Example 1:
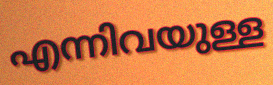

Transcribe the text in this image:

എന്നിവയുള്ള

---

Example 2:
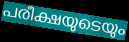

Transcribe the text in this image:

പരീക്ഷയുടെയും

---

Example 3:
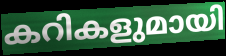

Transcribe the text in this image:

കറികളുമായി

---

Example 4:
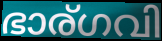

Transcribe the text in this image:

ഭാര്ഗവി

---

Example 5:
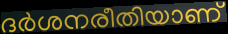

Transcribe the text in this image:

ദർശനരീതിയാണ്